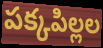
పక్కపిల్లల